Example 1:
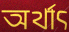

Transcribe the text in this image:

অর্থাৎ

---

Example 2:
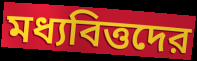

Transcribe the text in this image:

মধ্যবিত্তদের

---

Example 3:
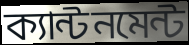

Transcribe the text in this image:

ক্যান্টনমেন্ট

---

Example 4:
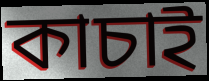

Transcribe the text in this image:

কাচাই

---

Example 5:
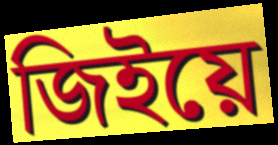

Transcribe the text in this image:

জিইয়ে